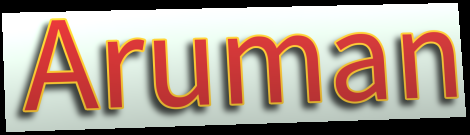
Aruman